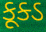
કૂક્ડ